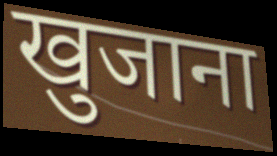
खुजाना